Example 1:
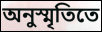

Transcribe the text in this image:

অনুস্মৃতিতে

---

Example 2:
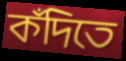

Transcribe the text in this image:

কঁদিতে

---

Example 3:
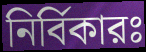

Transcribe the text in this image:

নির্বিকারঃ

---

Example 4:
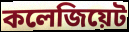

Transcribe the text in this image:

কলেজিয়েট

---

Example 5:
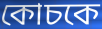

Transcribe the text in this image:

কোচকে